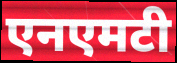
एनएमटी